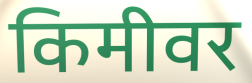
किमीवर